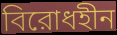
বিরোধহীন